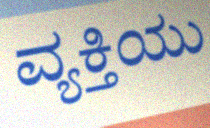
ವ್ಯಕ್ತಿಯು